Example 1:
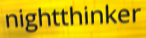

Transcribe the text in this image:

nightthinker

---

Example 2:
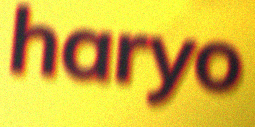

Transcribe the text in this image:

haryo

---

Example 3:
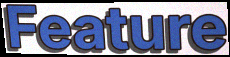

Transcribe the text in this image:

Feature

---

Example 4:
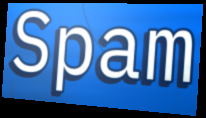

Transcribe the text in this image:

Spam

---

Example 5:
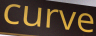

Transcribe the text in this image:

curve